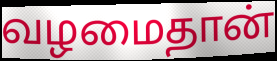
வழமைதான்